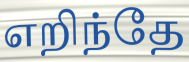
எறிந்தே